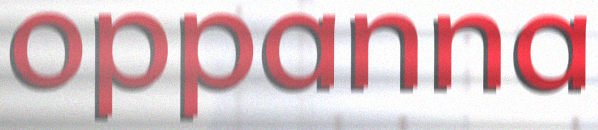
oppanna